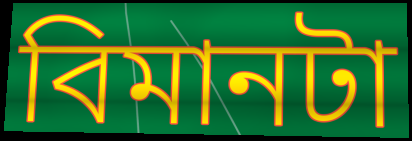
বিমানটা